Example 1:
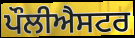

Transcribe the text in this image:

ਪੌਲੀਐਸਟਰ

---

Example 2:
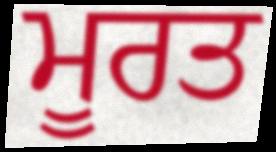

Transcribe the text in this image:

ਮੂਰਤ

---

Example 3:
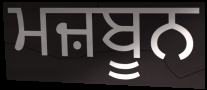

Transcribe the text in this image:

ਮਜ਼ਬੂਨ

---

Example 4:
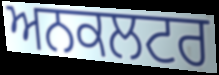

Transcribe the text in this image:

ਅਨਕਲਟਰ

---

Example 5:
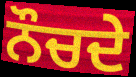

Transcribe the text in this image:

ਨੌਚਦੇ